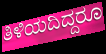
ತಿಳಿಯದಿದ್ದರೂ